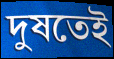
দুষতেই